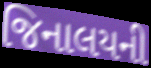
જિનાલયની